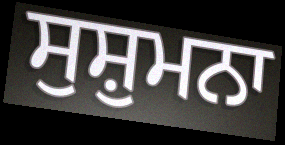
ਸੁਸ਼ੁਮਨਾ